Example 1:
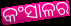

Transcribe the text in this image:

କଂସାଳର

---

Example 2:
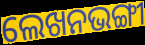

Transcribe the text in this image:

ଲେଖନଭଙ୍ଗୀ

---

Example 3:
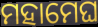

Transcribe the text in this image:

ମହାମେଘ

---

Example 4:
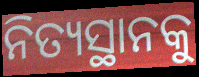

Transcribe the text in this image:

ନିତ୍ୟସ୍ଥାନକୁ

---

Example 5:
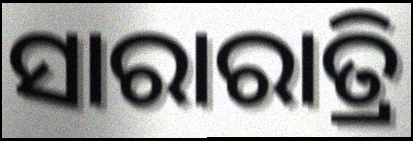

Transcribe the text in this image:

ସାରାରାତ୍ରି